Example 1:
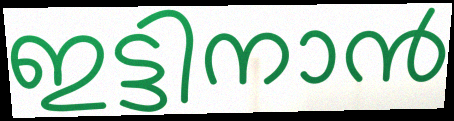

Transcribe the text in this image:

ഇട്ടിനാൻ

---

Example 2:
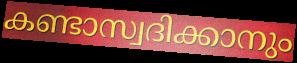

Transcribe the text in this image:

കണ്ടാസ്വദിക്കാനും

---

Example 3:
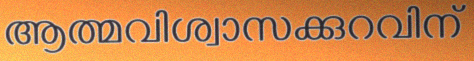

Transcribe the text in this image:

ആത്മവിശ്വാസക്കുറവിന്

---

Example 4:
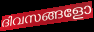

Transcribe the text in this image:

ദിവസങ്ങളോ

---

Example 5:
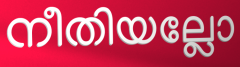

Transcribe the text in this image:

നീതിയല്ലോ